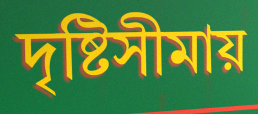
দৃষ্টিসীমায়